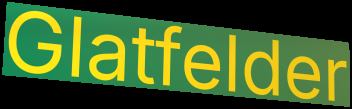
Glatfelder